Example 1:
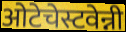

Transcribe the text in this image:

ओटेचेस्टवेन्नी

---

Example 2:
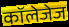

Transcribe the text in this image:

कॉलेजेज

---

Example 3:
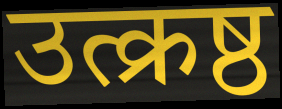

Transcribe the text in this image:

उत्क्रष्ठ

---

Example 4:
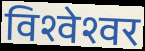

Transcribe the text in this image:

विश्वेश्वर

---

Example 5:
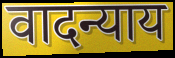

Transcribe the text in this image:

वादन्याय